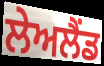
ਲੇਅਲੈਂਡ